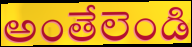
అంతేలెండి